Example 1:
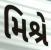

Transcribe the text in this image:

મિશ્રે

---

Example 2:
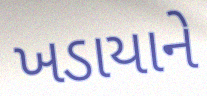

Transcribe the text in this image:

ખડાયાને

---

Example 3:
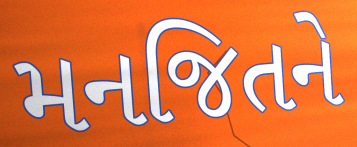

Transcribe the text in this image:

મનજિતને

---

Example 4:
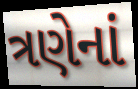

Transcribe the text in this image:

ત્રણેનાં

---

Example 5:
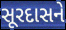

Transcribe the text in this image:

સૂરદાસને